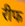
रीफ